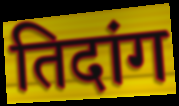
तिदांग